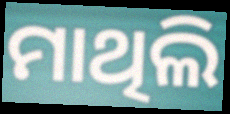
ମାଥିଲି